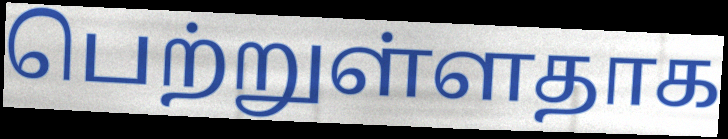
பெற்றுள்ளதாக